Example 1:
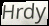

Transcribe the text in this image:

Hrdy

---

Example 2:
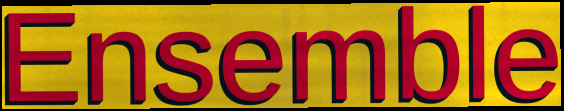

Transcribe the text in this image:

Ensemble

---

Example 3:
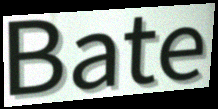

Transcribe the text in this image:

Bate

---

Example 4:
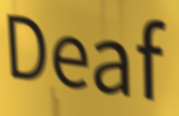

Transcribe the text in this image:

Deaf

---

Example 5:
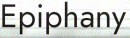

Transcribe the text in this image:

Epiphany